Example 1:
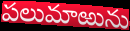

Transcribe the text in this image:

పలుమాఱును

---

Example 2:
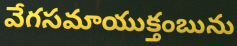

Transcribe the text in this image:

వేగసమాయుక్తంబును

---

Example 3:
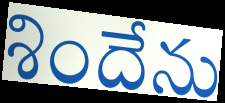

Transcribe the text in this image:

శిందేను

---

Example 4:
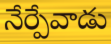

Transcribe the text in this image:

నేర్పేవాడు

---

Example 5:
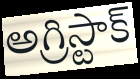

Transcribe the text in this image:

అగ్రిస్టాక్